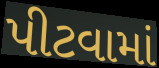
પીટવામાં